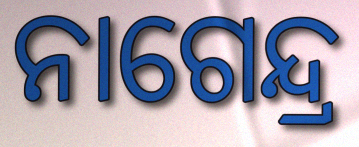
ନାଗେନ୍ଦ୍ର